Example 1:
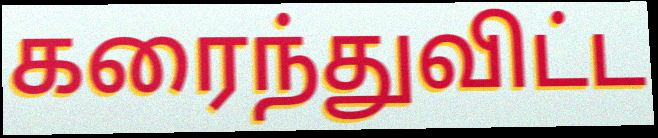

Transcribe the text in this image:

கரைந்துவிட்ட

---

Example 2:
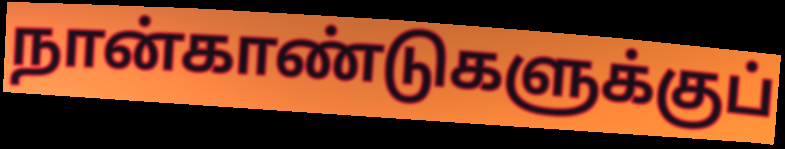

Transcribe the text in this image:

நான்காண்டுகளுக்குப்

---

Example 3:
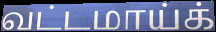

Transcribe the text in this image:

வட்டமாய்க்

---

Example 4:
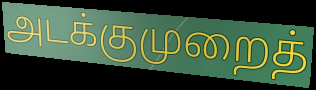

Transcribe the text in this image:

அடக்குமுறைத்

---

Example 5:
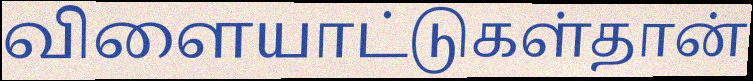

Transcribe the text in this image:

விளையாட்டுகள்தான்